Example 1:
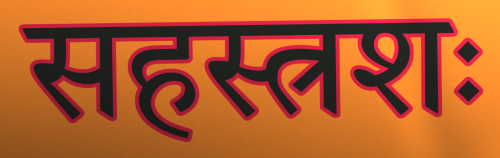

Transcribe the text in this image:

सहस्त्रशः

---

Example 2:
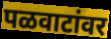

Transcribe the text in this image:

पळवाटांवर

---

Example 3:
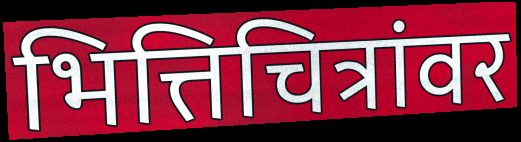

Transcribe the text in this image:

भित्तिचित्रांवर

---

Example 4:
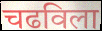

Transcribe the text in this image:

चढविला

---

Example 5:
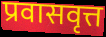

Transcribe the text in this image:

प्रवासवृत्त